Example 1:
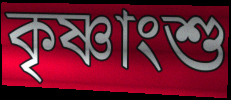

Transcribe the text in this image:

কৃষ্ণাংশু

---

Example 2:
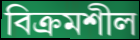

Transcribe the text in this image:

বিক্রমশীল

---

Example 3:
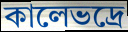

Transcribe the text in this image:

কালেভদ্রে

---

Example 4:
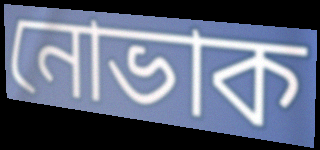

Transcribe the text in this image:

নোভাক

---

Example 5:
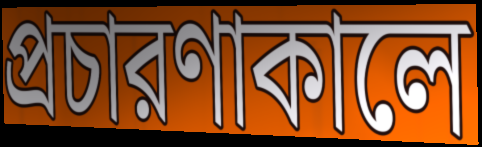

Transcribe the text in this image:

প্রচারণাকালে